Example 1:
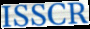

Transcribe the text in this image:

ISSCR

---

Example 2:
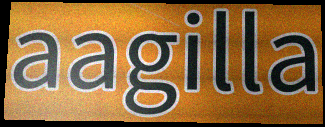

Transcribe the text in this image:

aagilla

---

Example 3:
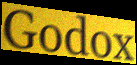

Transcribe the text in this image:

Godox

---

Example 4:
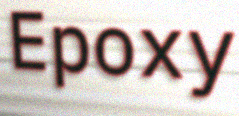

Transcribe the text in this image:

Epoxy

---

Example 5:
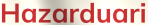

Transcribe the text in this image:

Hazarduari